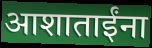
आशाताईंना